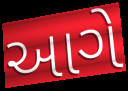
આગે